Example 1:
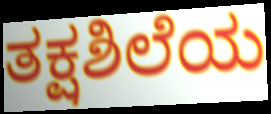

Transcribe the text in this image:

ತಕ್ಷಶಿಲೆಯ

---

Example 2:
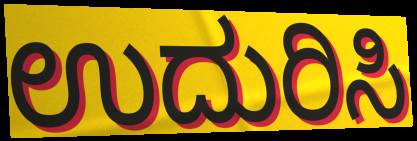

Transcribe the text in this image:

ಉದುರಿಸಿ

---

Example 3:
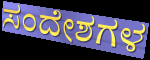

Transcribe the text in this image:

ಸಂದೇಶಗಳ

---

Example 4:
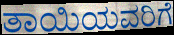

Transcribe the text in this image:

ತಾಯಿಯವರಿಗೆ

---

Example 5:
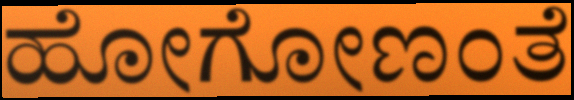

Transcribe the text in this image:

ಹೋಗೋಣಂತೆ